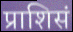
प्राशिसं